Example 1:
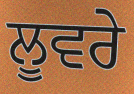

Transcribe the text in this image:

ਲੂਵਰੇ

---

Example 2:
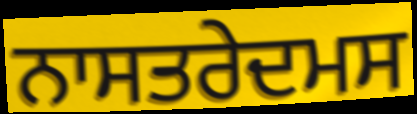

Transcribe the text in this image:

ਨਾਸਤਰੇਦਮਸ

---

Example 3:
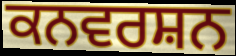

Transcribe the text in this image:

ਕਨਵਰਸ਼ਨ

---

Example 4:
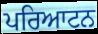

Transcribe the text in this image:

ਪਰਿਆਟਨ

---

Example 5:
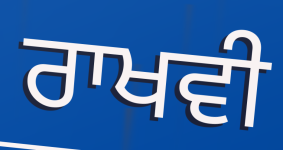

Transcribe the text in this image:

ਰਾਖਵੀ